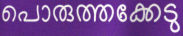
പൊരുത്തക്കേടു